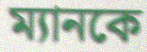
ম্যানকে